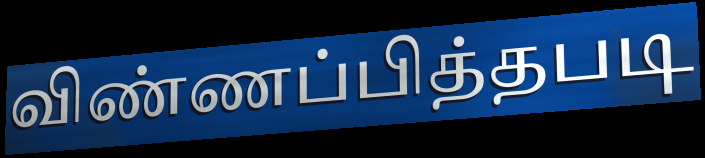
விண்ணப்பித்தபடி